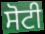
ਸੋਟੀ